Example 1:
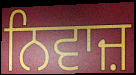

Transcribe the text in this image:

ਨਿਵਾਜ਼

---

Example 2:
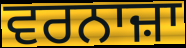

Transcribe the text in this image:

ਵਰਨਾਜ਼ਾ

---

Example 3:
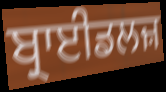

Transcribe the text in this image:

ਬ੍ਰਾਈਡਲਜ਼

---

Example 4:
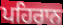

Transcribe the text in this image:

ਪਹਿਰਾਨ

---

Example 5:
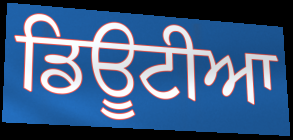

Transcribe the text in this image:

ਡਿਊਟੀਆ